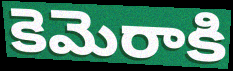
కెమెరాకి